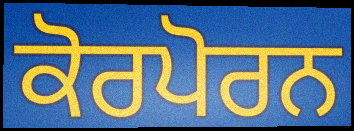
ਕੋਰਪੋਰਨ